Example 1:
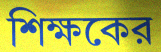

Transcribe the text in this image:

শিক্ষকের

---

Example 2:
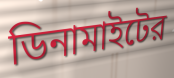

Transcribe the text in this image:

ডিনামাইটের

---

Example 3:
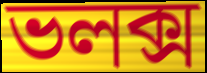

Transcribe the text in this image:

ভলক্স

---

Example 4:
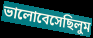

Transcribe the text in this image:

ভালোবেসেছিলুম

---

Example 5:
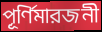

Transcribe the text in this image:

পূর্ণিমারজনী